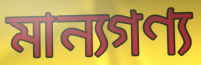
মান্যগণ্য